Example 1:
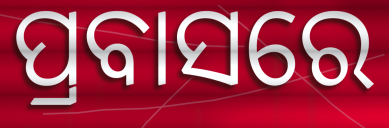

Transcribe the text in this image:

ପ୍ରବାସରେ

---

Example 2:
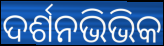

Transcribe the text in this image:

ଦର୍ଶନଭିଭିକ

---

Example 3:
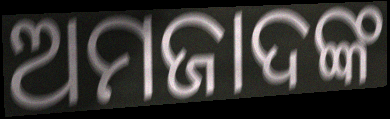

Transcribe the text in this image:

ଅମଜାଦଙ୍କ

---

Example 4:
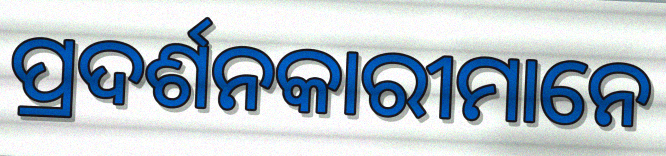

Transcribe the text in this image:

ପ୍ରଦର୍ଶନକାରୀମାନେ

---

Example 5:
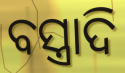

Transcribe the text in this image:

ବସ୍ତ୍ରାଦି